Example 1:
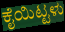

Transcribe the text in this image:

ಕೈಯಿಟ್ಟಳು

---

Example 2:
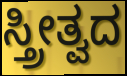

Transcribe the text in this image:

ಸ್ತ್ರೀತ್ವದ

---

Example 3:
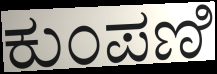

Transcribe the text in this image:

ಕುಂಪಣಿ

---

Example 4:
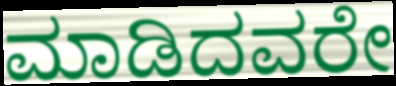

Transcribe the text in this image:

ಮಾಡಿದವರೇ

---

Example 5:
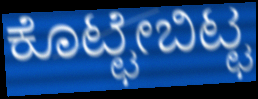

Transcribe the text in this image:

ಕೊಟ್ಟೇಬಿಟ್ಟ